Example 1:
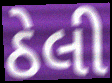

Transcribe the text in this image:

ઠેલી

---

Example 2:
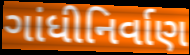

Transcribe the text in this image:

ગાંધીનિર્વાણ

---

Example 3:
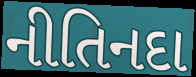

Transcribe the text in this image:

નીતિનદા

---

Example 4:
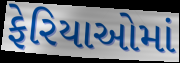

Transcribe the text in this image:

ફેરિયાઓમાં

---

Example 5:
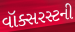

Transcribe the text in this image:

વૉક્સરસ્ટની